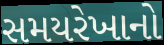
સમયરેખાનો